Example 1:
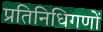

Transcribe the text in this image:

प्रतिनिधिगणों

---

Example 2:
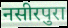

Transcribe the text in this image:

नसीरपुरा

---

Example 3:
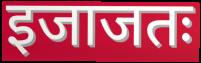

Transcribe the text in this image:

इजाजतः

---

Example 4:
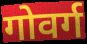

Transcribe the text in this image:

गोवर्ग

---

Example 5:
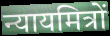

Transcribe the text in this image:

न्यायमित्रों